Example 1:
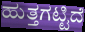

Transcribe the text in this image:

ಹುತ್ತಗಟ್ಟಿದೆ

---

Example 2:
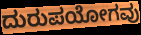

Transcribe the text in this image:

ದುರುಪಯೋಗವು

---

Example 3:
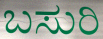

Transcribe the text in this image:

ಬಸುರಿ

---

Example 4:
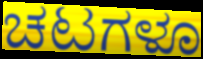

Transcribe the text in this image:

ಚಟಗಳೂ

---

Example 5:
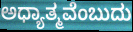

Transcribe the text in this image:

ಅಧ್ಯಾತ್ಮವೆಂಬುದು